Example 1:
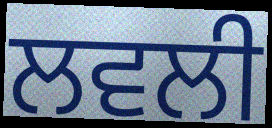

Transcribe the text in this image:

ਲਵਲੀ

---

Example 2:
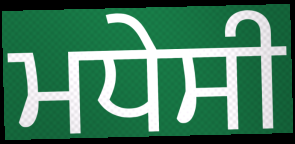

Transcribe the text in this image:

ਮਧੇਸੀ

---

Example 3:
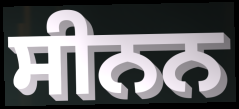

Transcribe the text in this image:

ਸੀਨਨ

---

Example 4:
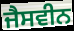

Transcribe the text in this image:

ਜੈਸਵੀਨ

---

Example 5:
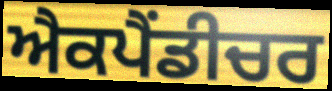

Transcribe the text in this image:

ਐਕਪੈਂਡੀਚਰ